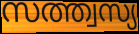
സത്ത്വസ്യ